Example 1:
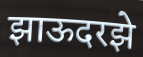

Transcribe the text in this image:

झाऊदरझे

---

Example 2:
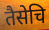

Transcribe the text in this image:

तैसेचि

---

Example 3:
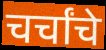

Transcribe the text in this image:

चर्चांचे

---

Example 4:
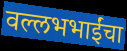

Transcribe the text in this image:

वल्लभभाईंचा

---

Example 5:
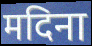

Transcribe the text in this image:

मदिना